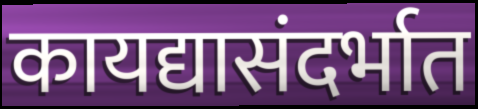
कायद्यासंदर्भात